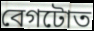
বেগটোত